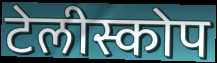
टेलीस्कोप